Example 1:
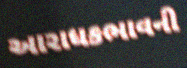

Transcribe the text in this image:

આરાધકભાવની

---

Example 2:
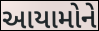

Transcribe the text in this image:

આયામોને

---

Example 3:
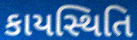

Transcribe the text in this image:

કાયસ્થિતિ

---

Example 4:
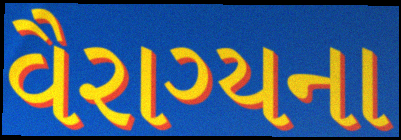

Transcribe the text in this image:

વૈરાગ્યના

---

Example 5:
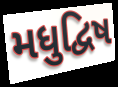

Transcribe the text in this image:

મધુદ્વિષ